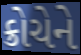
ક્રોચેને